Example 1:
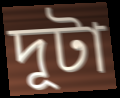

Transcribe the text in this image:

দূটা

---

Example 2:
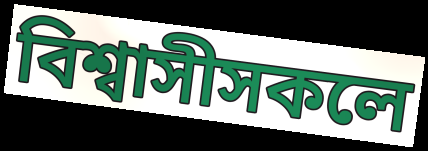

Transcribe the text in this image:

বিশ্বাসীসকলে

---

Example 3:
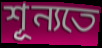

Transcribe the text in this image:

শূন্যতে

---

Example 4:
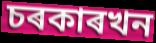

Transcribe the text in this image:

চৰকাৰখন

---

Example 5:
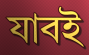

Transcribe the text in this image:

যাবই